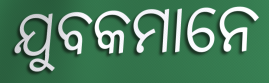
ଯୁବକମାନେ